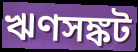
ঋণসঙ্কট